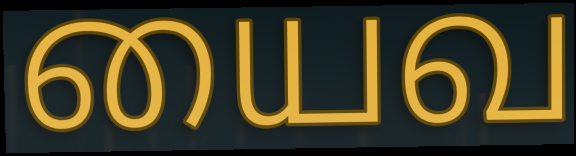
யைவ